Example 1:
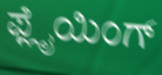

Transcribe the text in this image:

ಫ್ಲೈಯಿಂಗ್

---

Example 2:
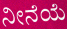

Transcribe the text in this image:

ನೀನೆಯೆ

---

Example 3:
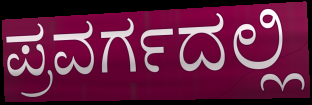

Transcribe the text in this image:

ಪ್ರವರ್ಗದಲ್ಲಿ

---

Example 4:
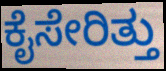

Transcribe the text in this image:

ಕೈಸೇರಿತ್ತು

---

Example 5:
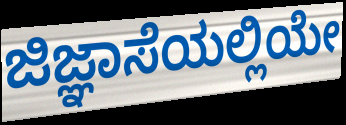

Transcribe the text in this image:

ಜಿಜ್ಞಾಸೆಯಲ್ಲಿಯೇ